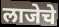
लाजेचे